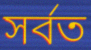
সর্বত